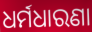
ଧର୍ମଧାରଣା